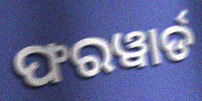
ଫରୱାର୍ଡ